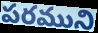
పరముని